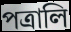
পত্রালি